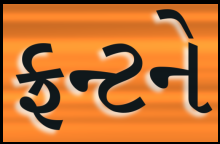
ફ્રન્ટને